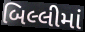
બિલ્લીમાં